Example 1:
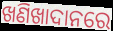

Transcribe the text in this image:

ଖଣିଖାଦାନରେ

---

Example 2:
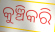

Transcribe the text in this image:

କୁଞ୍ଚିକରି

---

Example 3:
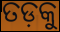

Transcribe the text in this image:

ତଡ଼କୁ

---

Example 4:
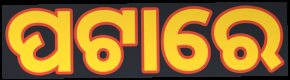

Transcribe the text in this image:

ପଟାରେ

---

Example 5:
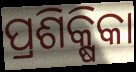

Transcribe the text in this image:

ପ୍ରଶିକ୍ଷିକା